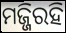
ମଜ୍ଜିରହି